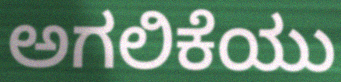
ಅಗಲಿಕೆಯು